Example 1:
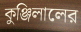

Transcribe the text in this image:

কুঞ্জিলালের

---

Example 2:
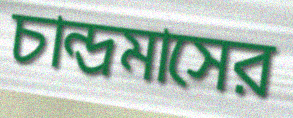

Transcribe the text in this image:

চান্দ্রমাসের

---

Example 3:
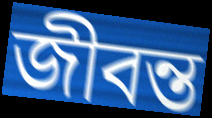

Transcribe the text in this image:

জীবন্ত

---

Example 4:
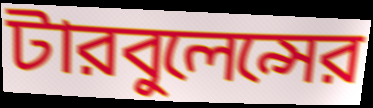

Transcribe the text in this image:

টারবুলেন্সের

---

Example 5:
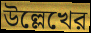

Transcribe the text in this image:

উল্লেখের